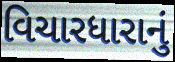
વિચારધારાનું